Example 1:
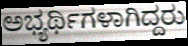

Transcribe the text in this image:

ಅಭ್ಯರ್ಥಿಗಳಾಗಿದ್ದರು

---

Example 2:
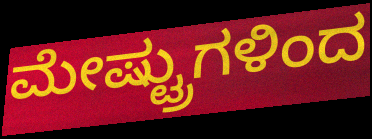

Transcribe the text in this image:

ಮೇಷ್ಟ್ರುಗಳಿಂದ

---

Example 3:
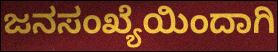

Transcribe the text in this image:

ಜನಸಂಖ್ಯೆಯಿಂದಾಗಿ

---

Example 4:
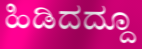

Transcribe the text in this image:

ಹಿಡಿದದ್ದೂ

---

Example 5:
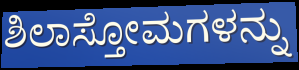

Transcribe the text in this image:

ಶಿಲಾಸ್ತೋಮಗಳನ್ನು